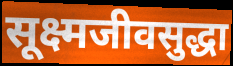
सूक्ष्मजीवसुद्धा